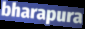
bharapura